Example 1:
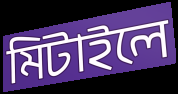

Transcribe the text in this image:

মিটাইলে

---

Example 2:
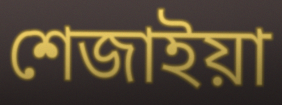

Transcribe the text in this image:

শেজাইয়া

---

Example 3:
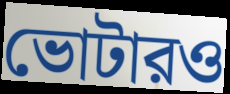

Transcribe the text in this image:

ভোটারও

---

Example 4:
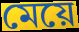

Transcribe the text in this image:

মেয়ে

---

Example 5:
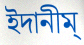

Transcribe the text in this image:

ইদানীম্